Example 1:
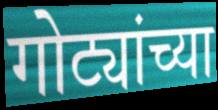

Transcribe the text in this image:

गोट्यांच्या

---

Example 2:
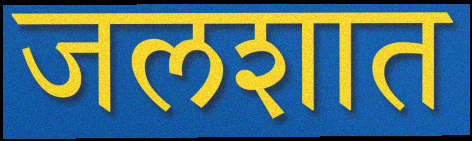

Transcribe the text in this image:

जलशात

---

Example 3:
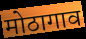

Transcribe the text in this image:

मोठागाव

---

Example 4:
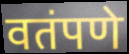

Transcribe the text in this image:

वतंपणे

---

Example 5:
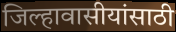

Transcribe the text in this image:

जिल्हावासीयांसाठी